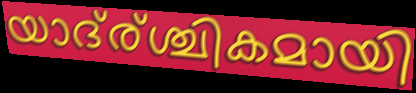
യാദ്ര്ശ്ചികമായി